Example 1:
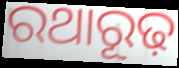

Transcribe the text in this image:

ରଥାରୂଢ଼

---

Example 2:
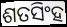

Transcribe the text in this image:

ଶତସିଂହ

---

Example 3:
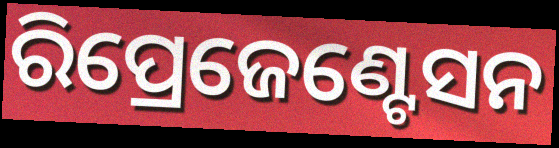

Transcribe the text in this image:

ରିପ୍ରେଜେଣ୍ଟେସନ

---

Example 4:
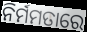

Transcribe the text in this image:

ନିର୍ମମତାରେ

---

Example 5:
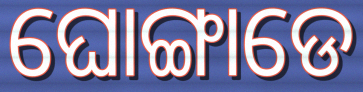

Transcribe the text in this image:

ଘୋଙ୍ଗାଡେ